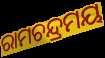
ରାମଚନ୍ଦ୍ରମୟ